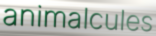
animalcules